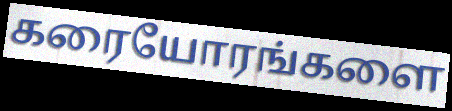
கரையோரங்களை